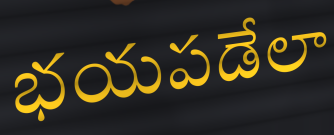
భయపడేలా